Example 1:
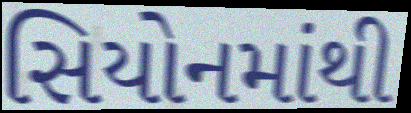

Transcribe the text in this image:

સિયોનમાંથી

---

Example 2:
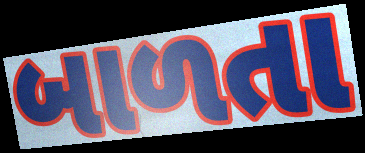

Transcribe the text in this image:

બાળતા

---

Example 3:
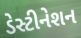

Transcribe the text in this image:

ડેસ્ટીનેશન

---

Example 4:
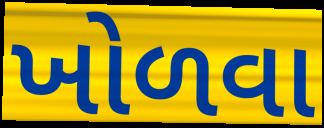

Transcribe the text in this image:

ખોળવા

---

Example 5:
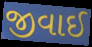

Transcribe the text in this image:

જીવાઈ